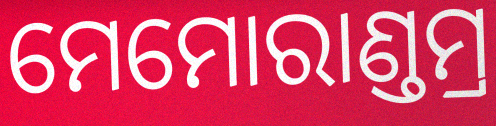
ମେମୋରାଣ୍ଡମ୍ର